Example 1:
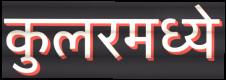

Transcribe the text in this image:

कुलरमध्ये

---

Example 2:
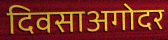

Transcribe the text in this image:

दिवसाअगोदर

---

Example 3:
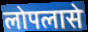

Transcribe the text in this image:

लोपलासे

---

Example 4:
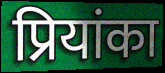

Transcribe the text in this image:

प्रियांका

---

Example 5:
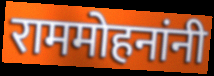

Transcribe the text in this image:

राममोहनांनी